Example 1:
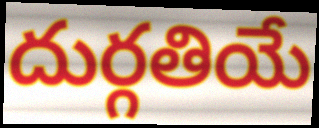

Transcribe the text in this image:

దుర్గతియే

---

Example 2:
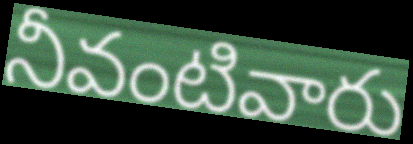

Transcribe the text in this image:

నీవంటివారు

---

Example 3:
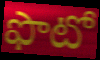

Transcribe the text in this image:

ఫొటో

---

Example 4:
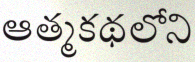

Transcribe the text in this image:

ఆత్మకథలోని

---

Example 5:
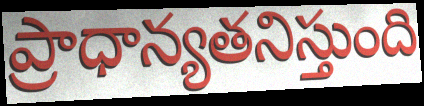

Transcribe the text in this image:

ప్రాధాన్యతనిస్తుంది